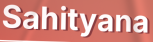
Sahityana